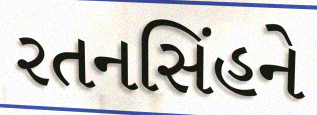
રતનસિંહને